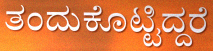
ತಂದುಕೊಟ್ಟಿದ್ದರೆ